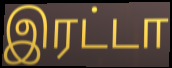
இரட்டா